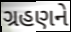
ગ્રહણને